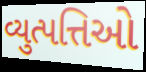
વ્યુત્પત્તિઓ